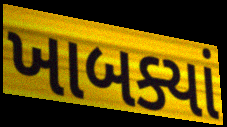
ખાબક્યાં